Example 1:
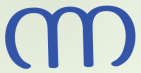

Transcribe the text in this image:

ന്ന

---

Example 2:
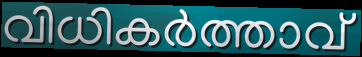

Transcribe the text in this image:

വിധികർത്താവ്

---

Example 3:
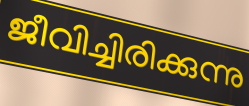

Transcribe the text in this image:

ജീവിച്ചിരിക്കുന്നു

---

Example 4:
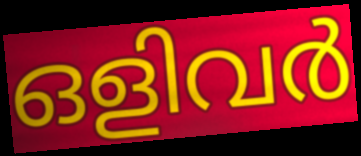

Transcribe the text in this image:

ഒളിവർ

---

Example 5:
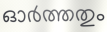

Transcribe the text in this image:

ഓർത്തതും